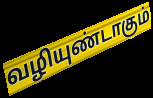
வழியுண்டாகும்